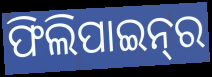
ଫିଲିପାଇନ୍‌ର